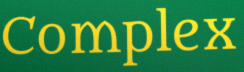
Complex